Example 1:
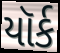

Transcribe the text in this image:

યૉર્ક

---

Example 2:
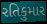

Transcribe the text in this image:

રતિકુમાર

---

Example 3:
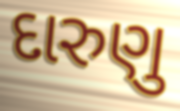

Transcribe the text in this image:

દારુણુ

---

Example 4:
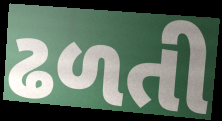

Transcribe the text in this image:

ઢળતી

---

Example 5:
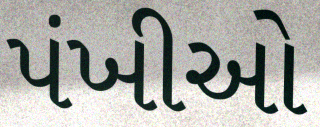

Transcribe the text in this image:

પંખીઓ